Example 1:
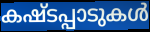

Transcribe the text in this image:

കഷ്ടപ്പാടുകൾ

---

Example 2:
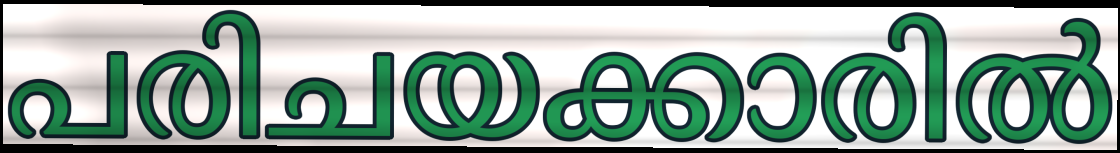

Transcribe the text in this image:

പരിചയക്കാരിൽ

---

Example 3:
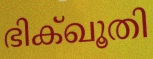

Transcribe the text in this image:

ഭിക്ഖൂതി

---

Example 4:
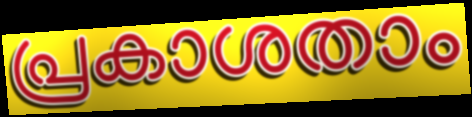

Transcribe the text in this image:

പ്രകാശതാം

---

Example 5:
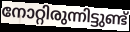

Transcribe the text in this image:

നോറ്റിരുന്നിട്ടുണ്ട്